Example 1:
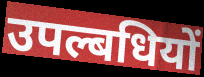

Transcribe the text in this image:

उपल्बधियों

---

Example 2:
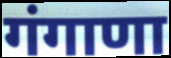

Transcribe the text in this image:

गंगाणा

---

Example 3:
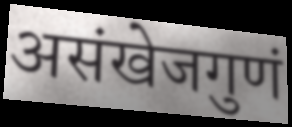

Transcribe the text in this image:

असंखेजगुणं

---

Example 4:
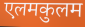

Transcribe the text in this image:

एलमकुलम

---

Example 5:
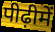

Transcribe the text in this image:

पीढ़ीमें